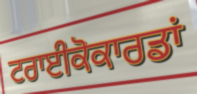
ਟਰਾਈਕੋਕਾਰਡਾਂ